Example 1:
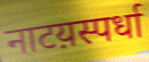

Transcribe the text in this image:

नाटय़स्पर्धा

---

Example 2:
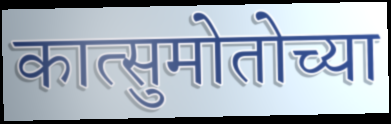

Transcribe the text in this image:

कात्सुमोतोच्या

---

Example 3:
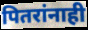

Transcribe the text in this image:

पितरांनाही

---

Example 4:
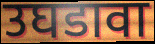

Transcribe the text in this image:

उघडावा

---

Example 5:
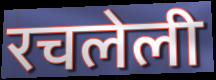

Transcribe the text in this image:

रचलेली